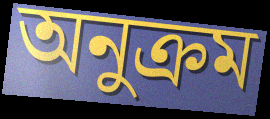
অনুক্ৰম